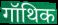
गॉथिक